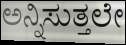
ಅನ್ನಿಸುತ್ತಲೇ